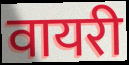
वायरी